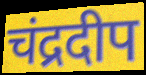
चंद्रदीप